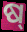
ଷ୍